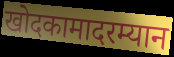
खोदकामादरम्यान